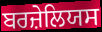
ਬਰਜ਼ੇਲਿਯਸ